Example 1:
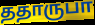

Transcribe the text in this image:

ததாருபா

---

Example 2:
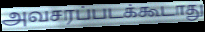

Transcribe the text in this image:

அவசரப்படக்கூடாது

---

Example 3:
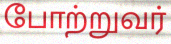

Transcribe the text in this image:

போற்றுவர்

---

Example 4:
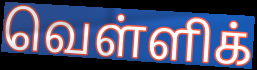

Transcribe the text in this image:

வெள்ளிக்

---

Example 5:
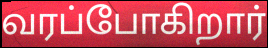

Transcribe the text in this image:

வரப்போகிறார்